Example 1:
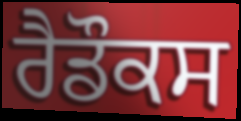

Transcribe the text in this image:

ਰੈਡੌਕਸ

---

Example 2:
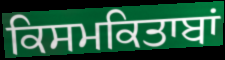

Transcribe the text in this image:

ਕਿਸਮਕਿਤਾਬਾਂ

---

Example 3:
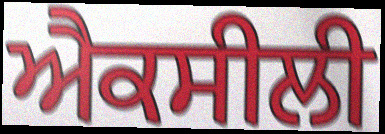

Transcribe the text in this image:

ਐਕਸੀਲੀ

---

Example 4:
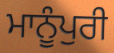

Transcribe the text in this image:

ਮਾਨੂੰਪੁਰੀ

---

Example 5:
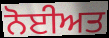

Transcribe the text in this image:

ਨੋਈਅਤ